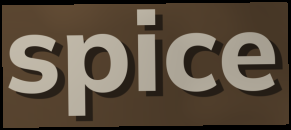
spice